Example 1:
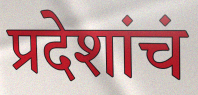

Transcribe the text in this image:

प्रदेशांचं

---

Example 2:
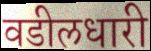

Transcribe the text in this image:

वडीलधारी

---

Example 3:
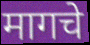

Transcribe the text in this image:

मागचे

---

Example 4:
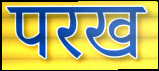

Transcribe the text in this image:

परख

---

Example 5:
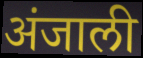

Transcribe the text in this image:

अंजाली